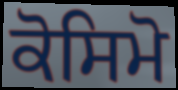
ਕੋਸਿਮੋ